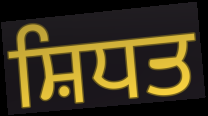
ਸ਼ਿਧਤ